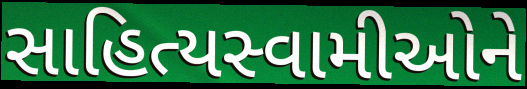
સાહિત્યસ્વામીઓને